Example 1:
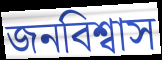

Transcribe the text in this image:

জনবিশ্বাস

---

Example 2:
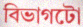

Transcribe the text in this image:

বিভাগটো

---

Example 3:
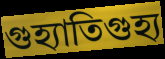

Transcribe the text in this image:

গুহ্যাতিগুহ্য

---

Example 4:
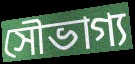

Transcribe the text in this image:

সৌভাগ্য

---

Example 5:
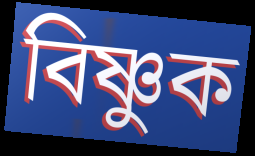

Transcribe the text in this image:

বিষ্ণুক